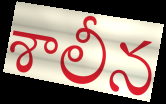
శాలీన